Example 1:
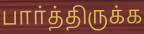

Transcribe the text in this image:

பார்த்திருக்க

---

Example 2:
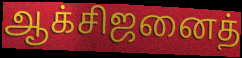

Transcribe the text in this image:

ஆக்சிஜனைத்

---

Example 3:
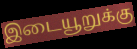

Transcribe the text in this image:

இடையூறுக்கு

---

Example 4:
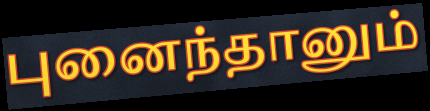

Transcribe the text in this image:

புனைந்தானும்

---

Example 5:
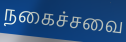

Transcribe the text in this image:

நகைச்சவை